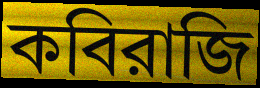
কবিরাজি